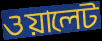
ওয়ালেট